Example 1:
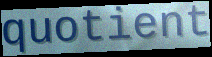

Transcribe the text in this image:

quotient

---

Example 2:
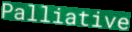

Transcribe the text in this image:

Palliative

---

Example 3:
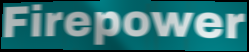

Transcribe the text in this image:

Firepower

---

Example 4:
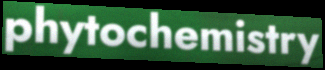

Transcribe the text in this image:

phytochemistry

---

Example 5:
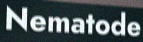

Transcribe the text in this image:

Nematode